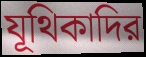
যূথিকাদির